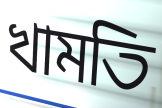
খামতি